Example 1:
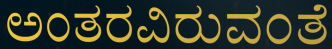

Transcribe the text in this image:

ಅಂತರವಿರುವಂತೆ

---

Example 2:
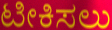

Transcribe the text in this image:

ಟೀಕಿಸಲು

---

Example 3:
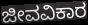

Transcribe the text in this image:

ಜೀವವಿಕಾರ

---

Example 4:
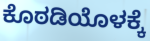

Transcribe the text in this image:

ಕೊಠಡಿಯೊಳಕ್ಕೆ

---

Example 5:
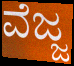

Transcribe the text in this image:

ವೆಜ್ಜ